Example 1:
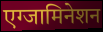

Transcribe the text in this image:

एग्‍जामिनेशन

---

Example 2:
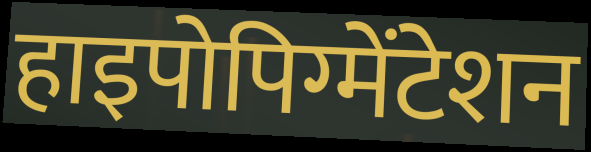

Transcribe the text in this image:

हाइपोपिग्मेंटेशन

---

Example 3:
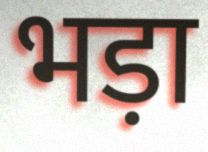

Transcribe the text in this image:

भड़ा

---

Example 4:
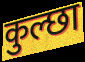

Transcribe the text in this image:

कुल्छा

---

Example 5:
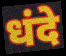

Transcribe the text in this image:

धंदे